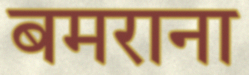
बमराना